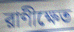
রাণীক্ষেত